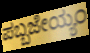
ಪಬ್ಬಜೇಯ್ಯಂ